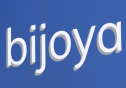
bijoya